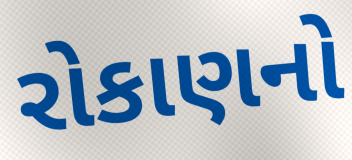
રોકાણનો